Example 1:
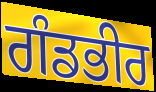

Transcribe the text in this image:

ਗੰਡਭੀਰ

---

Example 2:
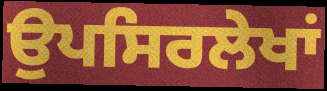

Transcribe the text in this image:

ਉਪਸਿਰਲੇਖਾਂ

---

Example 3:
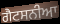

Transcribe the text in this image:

ਗੈਟਸਨੀਆ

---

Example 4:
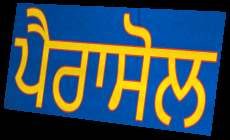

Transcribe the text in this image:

ਪੈਰਾਸੋਲ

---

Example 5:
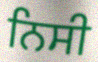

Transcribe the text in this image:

ਨਿਸੀ